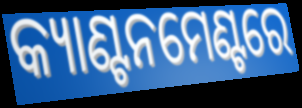
କ୍ୟାଣ୍ଟନମେଣ୍ଟରେ